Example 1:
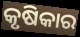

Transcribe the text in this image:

କୃଷିକାର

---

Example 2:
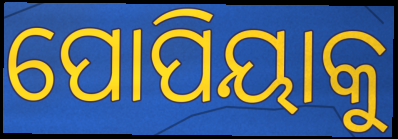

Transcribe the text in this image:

ପୋପିୟାକୁ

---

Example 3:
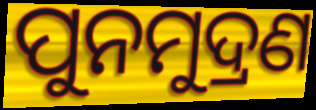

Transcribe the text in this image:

ପୁନମୁଦ୍ରଣ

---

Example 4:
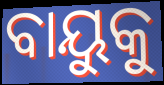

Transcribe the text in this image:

ବାୟୁକୁ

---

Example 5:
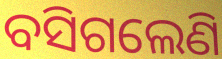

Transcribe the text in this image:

ବସିଗଲେଣି